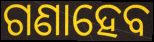
ଗଣାହେବ